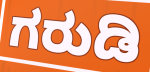
ಗರುಡಿ